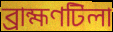
ব্রাহ্মণটিলা